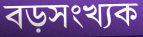
বড়সংখ্যক